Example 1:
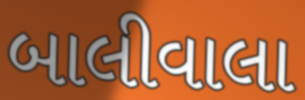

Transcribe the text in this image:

બાલીવાલા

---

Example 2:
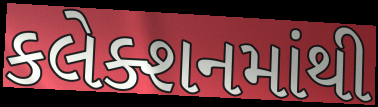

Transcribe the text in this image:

કલેક્શનમાંથી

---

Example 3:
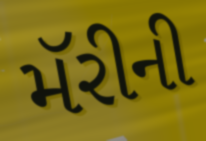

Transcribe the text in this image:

મૅરીની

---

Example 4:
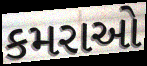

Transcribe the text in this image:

કમરાઓ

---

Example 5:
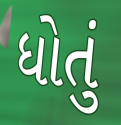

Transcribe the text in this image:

ધોતું